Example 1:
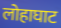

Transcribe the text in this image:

लोहाघाट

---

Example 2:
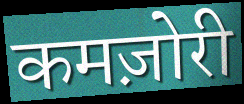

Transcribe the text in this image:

कमज़ोरी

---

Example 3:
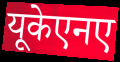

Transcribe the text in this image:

यूकेएनए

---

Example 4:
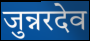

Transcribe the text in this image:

जुन्नरदेव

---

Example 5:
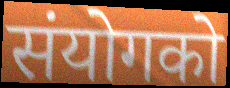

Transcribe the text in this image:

संयोगको